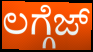
ಲಗ್ಗೆಜ್